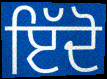
ਇੱਦੋ